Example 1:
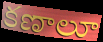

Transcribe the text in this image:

కణాలూ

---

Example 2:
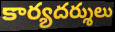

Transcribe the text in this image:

కార్యదర్శులు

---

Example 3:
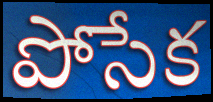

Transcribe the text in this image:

పోసేక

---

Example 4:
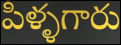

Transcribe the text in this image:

పిళ్ళగారు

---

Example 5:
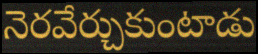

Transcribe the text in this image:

నెరవేర్చుకుంటాడు